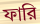
ফারি